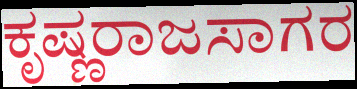
ಕೃಷ್ಣರಾಜಸಾಗರ